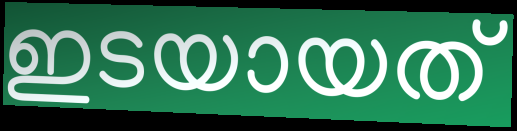
ഇടയായത്